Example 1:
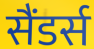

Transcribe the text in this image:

सैंडर्स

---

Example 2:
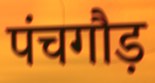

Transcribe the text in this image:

पंचगौड़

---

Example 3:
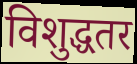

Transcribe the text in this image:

विशुद्धतर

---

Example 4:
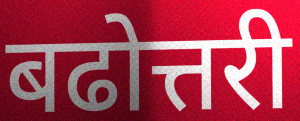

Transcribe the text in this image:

बढोत्तरी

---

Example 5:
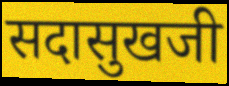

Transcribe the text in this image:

सदासुखजी